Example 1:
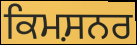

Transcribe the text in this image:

ਕਿਮ਼ਸਨਰ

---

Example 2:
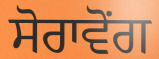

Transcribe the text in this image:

ਸੋਰਾਵੋਂਗ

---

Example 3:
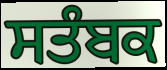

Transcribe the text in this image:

ਸਤੰਬਕ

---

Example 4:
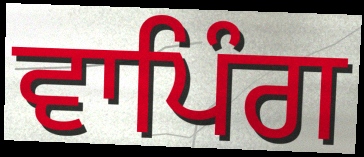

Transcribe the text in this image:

ਵਾਪਿੰਗ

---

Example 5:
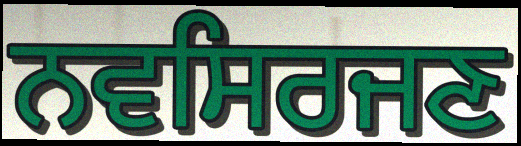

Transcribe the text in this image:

ਨਵਸਿਰਜਣ